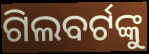
ଗିଲବର୍ଟଙ୍କୁ